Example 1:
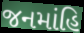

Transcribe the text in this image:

જનમાંહિ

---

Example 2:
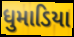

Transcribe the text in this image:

ધુમાડિયા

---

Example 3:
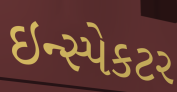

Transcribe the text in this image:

ઇન્સ્પેકટર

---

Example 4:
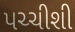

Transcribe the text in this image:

પચ્ચીશી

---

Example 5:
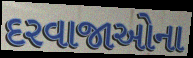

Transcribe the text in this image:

દરવાજાઓના